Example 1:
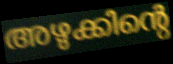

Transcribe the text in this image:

അഴുക്കിന്റെ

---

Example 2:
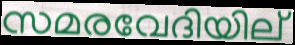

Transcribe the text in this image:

സമരവേദിയില്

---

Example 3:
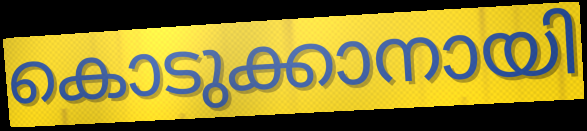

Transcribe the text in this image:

കൊടുക്കാനായി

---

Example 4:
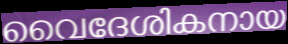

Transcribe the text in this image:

വൈദേശികനായ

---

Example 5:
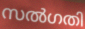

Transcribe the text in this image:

സൽഗതി